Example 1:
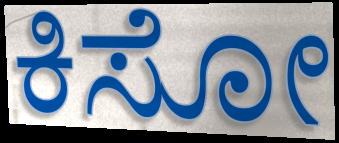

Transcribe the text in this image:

ಕಿಸೋ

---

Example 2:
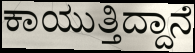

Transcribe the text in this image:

ಕಾಯುತ್ತಿದ್ದಾನೆ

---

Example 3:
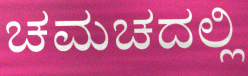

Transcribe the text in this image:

ಚಮಚದಲ್ಲಿ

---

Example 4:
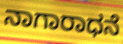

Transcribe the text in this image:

ನಾಗಾರಾಧನೆ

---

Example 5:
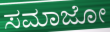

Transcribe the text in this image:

ಸಮಾಜೋ